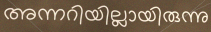
അന്നറിയില്ലായിരുന്നു